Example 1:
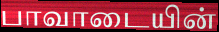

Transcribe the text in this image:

பாவாடையின்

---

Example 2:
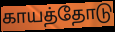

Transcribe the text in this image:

காயத்தோடு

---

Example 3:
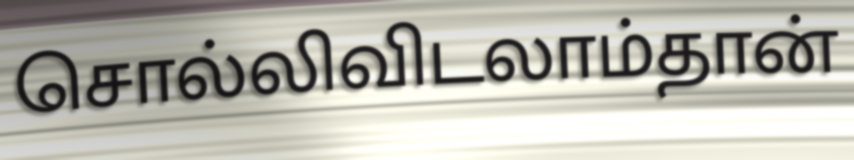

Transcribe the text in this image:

சொல்லிவிடலாம்தான்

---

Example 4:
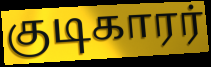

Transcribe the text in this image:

குடிகாரர்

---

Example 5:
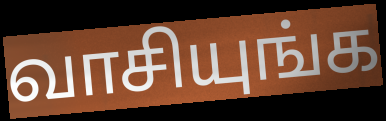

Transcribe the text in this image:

வாசியுங்க